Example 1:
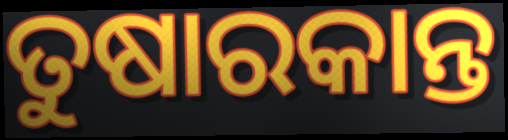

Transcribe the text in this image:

ତୁଷାରକାନ୍ତ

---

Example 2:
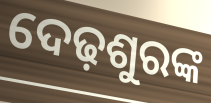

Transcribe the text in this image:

ଦେଢ଼ଶୁରଙ୍କ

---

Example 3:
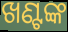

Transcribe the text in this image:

ଖଣ୍ଟଙ୍କ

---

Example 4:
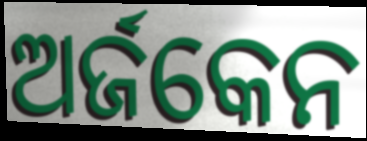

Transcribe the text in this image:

ଅର୍ଜକେନ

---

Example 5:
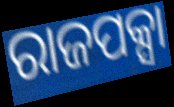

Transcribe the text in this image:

ରାଜପକ୍ସା